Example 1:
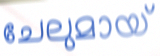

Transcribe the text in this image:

ചേലുമായ്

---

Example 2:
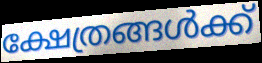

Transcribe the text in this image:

ക്ഷേത്രങ്ങൾക്ക്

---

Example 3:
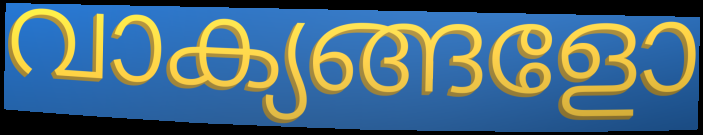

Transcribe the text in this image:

വാക്യങ്ങളോ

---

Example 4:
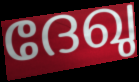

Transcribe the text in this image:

ദേഖു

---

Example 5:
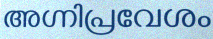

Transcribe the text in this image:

അഗ്നിപ്രവേശം